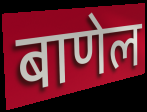
बाणेल